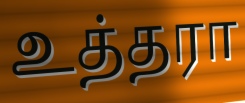
உத்தரா